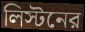
লিস্টনের